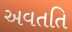
અવતતિ